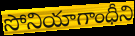
సోనియాగాంధీని